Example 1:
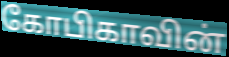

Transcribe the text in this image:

கோபிகாவின்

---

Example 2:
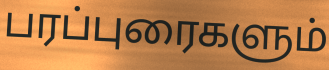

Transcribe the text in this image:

பரப்புரைகளும்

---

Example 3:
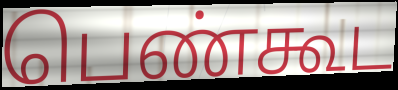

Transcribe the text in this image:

பெண்கூட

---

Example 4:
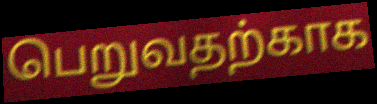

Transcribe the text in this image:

பெறுவதற்காக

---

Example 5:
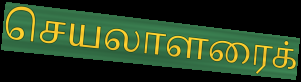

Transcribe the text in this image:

செயலாளரைக்